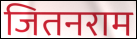
जितनराम